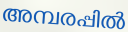
അമ്പരപ്പിൽ